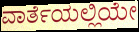
ವಾರ್ತೆಯಲ್ಲಿಯೇ